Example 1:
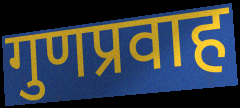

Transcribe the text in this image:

गुणप्रवाह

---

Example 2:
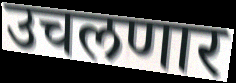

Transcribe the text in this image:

उचलणार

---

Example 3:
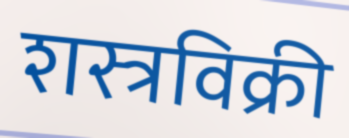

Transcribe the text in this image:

शस्त्रविक्री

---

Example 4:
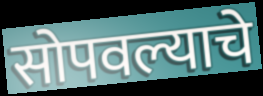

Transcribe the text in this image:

सोपवल्याचे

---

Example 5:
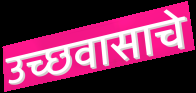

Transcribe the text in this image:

उच्छवासाचे